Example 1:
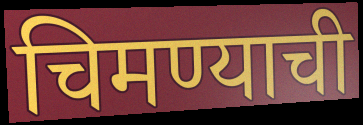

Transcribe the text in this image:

चिमण्याची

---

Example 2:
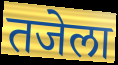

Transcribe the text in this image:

तजेला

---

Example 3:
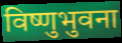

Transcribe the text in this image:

विष्णुभुवना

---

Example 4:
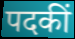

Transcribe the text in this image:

पदकीं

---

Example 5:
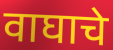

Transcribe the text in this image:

वाघाचे